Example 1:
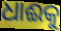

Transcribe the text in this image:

ଧାଈକୁ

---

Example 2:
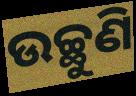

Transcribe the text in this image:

ଉଚ୍ଛୁଣି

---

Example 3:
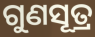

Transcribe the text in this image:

ଗୁଣସୂତ୍ର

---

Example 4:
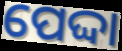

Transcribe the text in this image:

ପେଦ୍ଦା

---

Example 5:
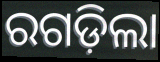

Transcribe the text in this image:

ରଗଡ଼ିଲା